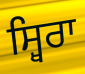
ਸ੍ਥਿਰਾ